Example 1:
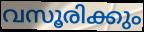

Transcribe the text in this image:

വസൂരിക്കും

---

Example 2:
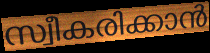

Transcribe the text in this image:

സ്വീകരിക്കാൻ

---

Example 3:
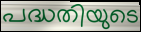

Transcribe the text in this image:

പദ്ധതിയുടെ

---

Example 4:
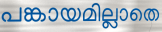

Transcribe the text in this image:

പങ്കായമില്ലാതെ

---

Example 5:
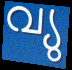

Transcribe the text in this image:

വ്യു